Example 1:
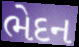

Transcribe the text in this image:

ભેદન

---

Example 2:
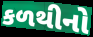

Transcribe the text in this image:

કળથીનો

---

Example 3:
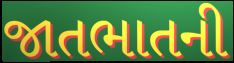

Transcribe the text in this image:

જાતભાતની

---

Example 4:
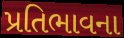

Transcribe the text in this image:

પ્રતિભાવના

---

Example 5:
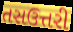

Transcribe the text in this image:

તસઉત્તરી